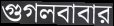
গুগলবাবার